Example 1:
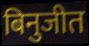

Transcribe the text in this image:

बिनुजीत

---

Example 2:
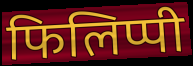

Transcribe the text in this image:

फिलिप्पी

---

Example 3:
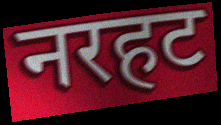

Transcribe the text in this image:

नरहट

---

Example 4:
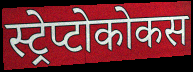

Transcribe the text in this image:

स्ट्रेप्टोकोकस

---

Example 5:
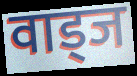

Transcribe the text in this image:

वाड्ज